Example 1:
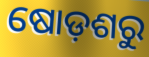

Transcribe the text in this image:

ଷୋଡ଼ଶରୁ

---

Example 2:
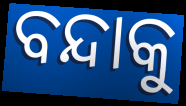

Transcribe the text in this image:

ବନ୍ଦାକୁ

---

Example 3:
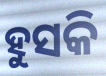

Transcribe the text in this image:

ହୁସକି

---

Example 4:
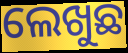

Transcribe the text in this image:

ଲେଖୁଛ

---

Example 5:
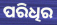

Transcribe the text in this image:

ପରିଧିର